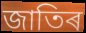
জাতিৰ